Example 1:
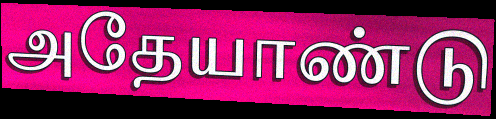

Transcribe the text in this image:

அதேயாண்டு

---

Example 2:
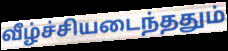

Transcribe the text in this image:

வீழ்ச்சியடைந்ததும்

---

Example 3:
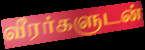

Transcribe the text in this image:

வீரர்களுடன்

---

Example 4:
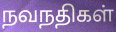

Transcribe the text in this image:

நவநதிகள்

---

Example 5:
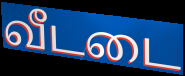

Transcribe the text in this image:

வீடடை